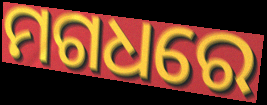
ମଗଧରେ